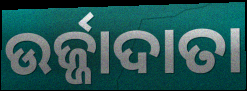
ଉର୍ଜ୍ଜାଦାତା